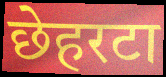
छेहरटा